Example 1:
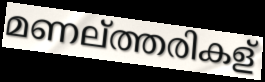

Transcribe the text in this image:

മണല്ത്തരികള്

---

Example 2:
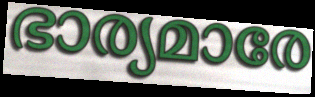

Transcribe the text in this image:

ഭാര്യമാരേ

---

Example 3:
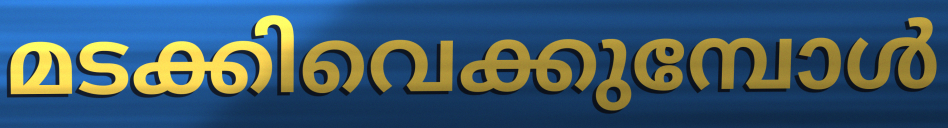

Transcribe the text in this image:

മടക്കിവെക്കുമ്പോൾ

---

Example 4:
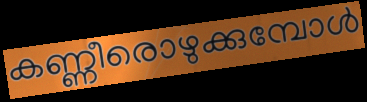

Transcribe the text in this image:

കണ്ണീരൊഴുക്കുമ്പോൾ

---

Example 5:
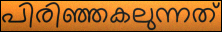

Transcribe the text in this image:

പിരിഞ്ഞകലുന്നത്